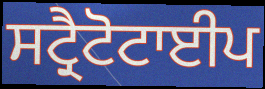
ਸਟ੍ਰੈਟੋਟਾਈਪ